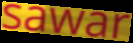
sawar